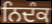
ਨਿਦੰਕ